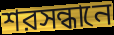
শরসন্ধানে